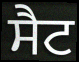
ਸੈਟ